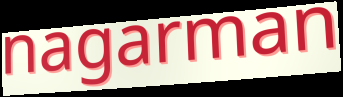
nagarman